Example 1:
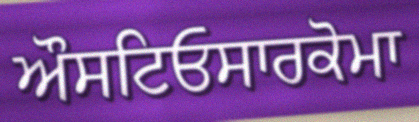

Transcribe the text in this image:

ਔਸਟਿਓਸਾਰਕੋਮਾ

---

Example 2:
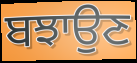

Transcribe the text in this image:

ਬਝਾਉਣ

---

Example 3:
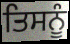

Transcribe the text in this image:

ਤਿਸਨੂੰ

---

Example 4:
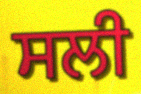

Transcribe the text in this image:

ਸਲੀ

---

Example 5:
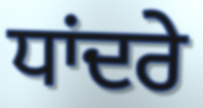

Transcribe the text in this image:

ਧਾਂਦਰੇ